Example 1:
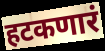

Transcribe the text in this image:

हटकणारं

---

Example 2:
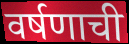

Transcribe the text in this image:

वर्षणाची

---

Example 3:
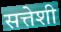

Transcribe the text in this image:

सत्तेशी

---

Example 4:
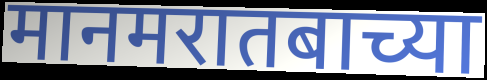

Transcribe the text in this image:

मानमरातबाच्या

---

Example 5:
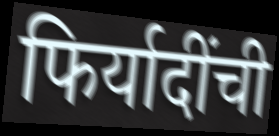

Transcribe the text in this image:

फिर्यादींची